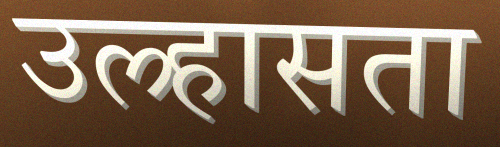
उल्हासता